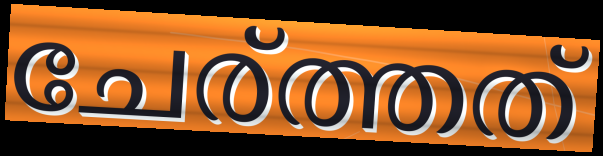
ചേര്ത്തത്